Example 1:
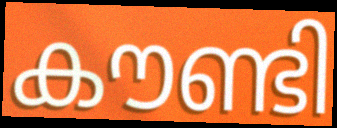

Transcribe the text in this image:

കൗണ്ടി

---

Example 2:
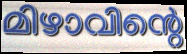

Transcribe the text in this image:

മിഴാവിന്റെ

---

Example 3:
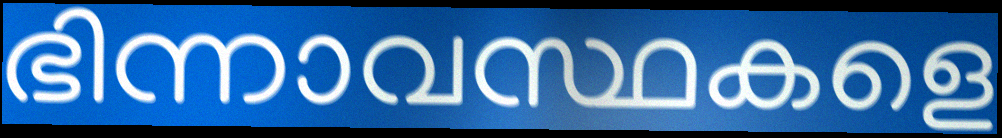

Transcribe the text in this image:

ഭിന്നാവസ്ഥകളെ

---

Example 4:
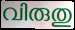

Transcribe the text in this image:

വിരുതു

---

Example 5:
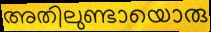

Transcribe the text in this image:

അതിലുണ്ടായൊരു